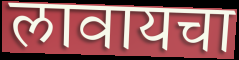
लावायचा